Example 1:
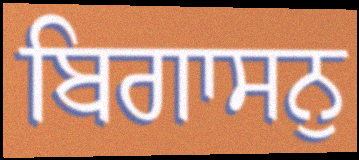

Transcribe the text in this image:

ਬਿਗਾਸਨੁ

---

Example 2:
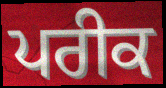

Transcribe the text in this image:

ਪਰੀਕ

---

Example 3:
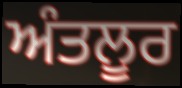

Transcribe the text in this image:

ਅੰਤਲੂਰ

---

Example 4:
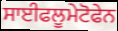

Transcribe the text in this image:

ਸਾਈਫਲੂਮੇਟੋਫੇਨ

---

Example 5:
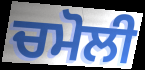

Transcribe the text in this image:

ਚਮੋਲੀ